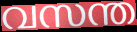
വസന്ത